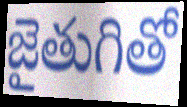
జైతుగితో